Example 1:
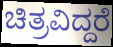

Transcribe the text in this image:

ಚಿತ್ರವಿದ್ದರೆ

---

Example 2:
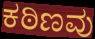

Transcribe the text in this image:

ಕಠಿಣವು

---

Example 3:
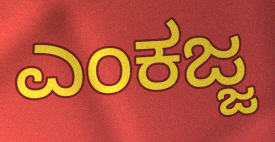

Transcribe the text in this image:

ಎಂಕಜ್ಜ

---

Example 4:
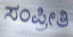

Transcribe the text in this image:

ಸಂಪ್ರೀತಿ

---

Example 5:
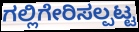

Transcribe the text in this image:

ಗಲ್ಲಿಗೇರಿಸಲ್ಪಟ್ಟ